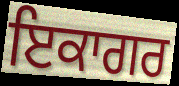
ਇਕਾਗਰ